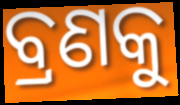
ବ୍ରଣକୁ